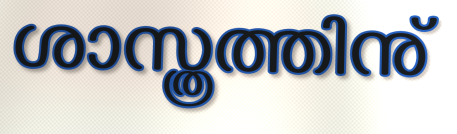
ശാസ്ത്രത്തിനു്